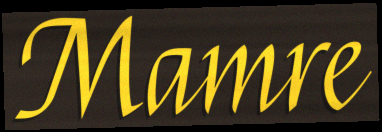
Mamre